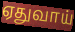
ஏதுவாய்